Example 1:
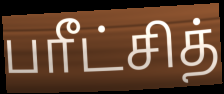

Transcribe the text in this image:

பரீட்சித்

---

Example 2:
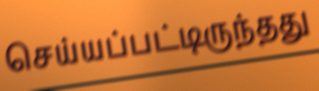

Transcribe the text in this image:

செய்யப்பட்டிருந்தது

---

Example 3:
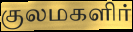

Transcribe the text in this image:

குலமகளிர்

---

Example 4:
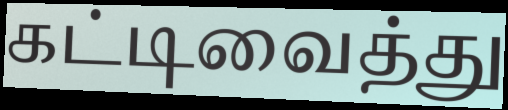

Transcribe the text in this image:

கட்டிவைத்து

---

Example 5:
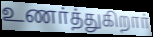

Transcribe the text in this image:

உணர்த்துகிறார்